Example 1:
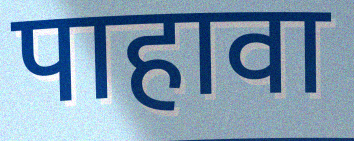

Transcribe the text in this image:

पाहावा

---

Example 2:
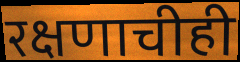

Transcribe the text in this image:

रक्षणाचीही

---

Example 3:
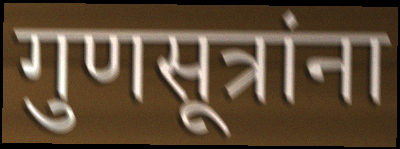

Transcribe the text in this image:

गुणसूत्रांना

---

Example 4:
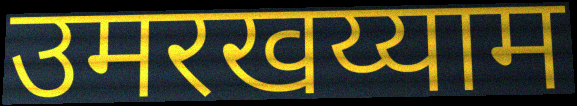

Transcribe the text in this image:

उमरखय्याम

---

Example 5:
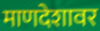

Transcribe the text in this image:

माणदेशावर